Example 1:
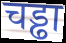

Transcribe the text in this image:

चड्ढा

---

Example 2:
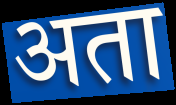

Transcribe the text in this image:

अता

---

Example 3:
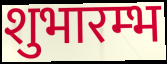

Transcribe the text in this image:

शुभारम्‍भ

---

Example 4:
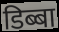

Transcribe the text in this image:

डिब्बा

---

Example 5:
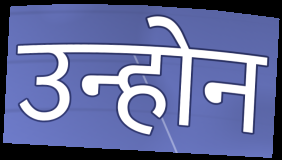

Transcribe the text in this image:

उन्होन